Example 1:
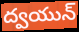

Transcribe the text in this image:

ద్వయున్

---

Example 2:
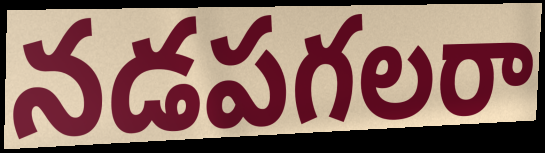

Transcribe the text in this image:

నడపగలరా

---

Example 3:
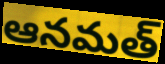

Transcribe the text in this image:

ఆనమత్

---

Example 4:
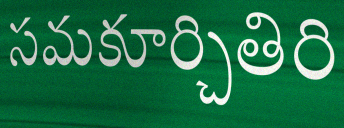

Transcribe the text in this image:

సమకూర్చితిరి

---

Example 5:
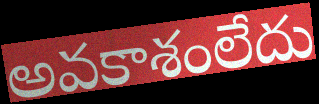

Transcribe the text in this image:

అవకాశంలేదు